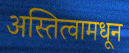
अस्तित्वामधून